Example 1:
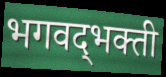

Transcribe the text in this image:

भगवद्‌भक्ती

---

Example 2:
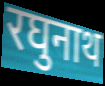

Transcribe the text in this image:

रघुनाथ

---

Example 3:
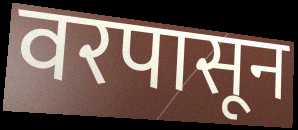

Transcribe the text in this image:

वरपासून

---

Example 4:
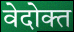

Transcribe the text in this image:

वेदोक्त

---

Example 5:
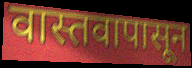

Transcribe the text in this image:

वास्तवापासून